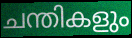
ചന്തികളും